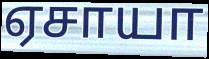
ஏசாயா